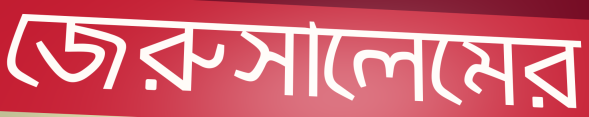
জেরুসালেমের